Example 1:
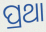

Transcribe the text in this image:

ପ୍ରଥା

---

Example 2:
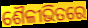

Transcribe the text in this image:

ଶୈଳୀଭିତରେ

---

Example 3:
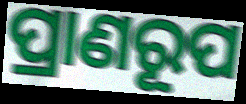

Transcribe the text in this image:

ପ୍ରାଣରୂପ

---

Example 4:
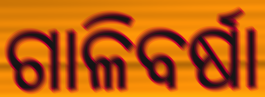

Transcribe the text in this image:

ଗାଳିବର୍ଷା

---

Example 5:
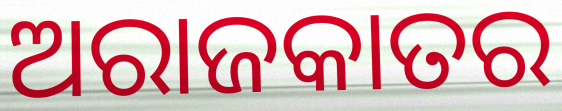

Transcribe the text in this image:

ଅରାଜକାତର